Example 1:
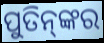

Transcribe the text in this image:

ପୁତିନ୍‌ଙ୍କର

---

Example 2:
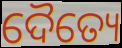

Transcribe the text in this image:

ଦୈତ୍ୟେ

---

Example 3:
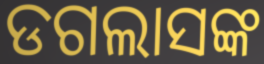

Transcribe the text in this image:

ଡଗଲାସଙ୍କ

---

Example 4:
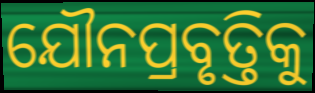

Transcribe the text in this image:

ଯୌନପ୍ରବୃତ୍ତିକୁ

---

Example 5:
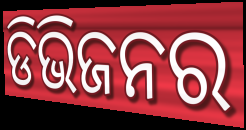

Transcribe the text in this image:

ଡିଭିଜନର